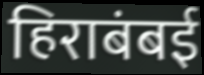
हिराबंबई